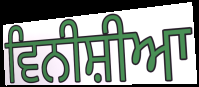
ਵਿਨੀਸ਼ੀਆ